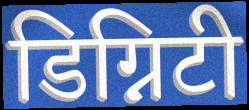
डिग्निटी